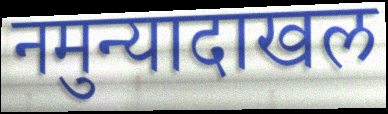
नमुन्यादाखल